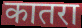
कातरा